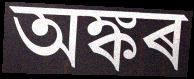
অঙ্কৰ